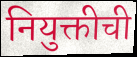
नियुक्तीची